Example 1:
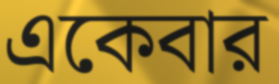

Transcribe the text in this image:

একেবার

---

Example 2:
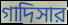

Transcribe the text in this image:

গাদিসার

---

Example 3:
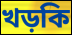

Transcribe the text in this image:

খড়কি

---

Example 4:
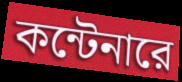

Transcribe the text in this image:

কন্টেনারে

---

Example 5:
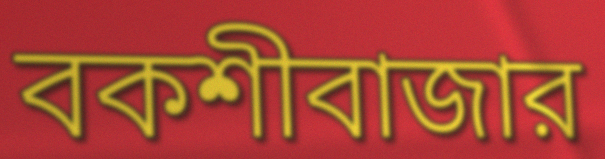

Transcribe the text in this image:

বকশীবাজার